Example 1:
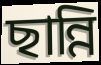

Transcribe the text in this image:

ছান্নি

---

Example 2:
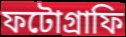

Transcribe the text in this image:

ফটোগ্ৰাফি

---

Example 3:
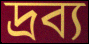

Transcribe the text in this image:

দ্ৰব্য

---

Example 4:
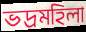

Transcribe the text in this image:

ভদ্ৰমহিলা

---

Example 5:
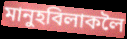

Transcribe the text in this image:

মানুহবিলাকলৈ